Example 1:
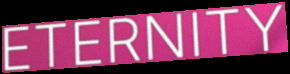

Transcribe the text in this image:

ETERNITY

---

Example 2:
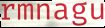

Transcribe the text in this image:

rmnagu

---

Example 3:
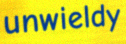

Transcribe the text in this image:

unwieldy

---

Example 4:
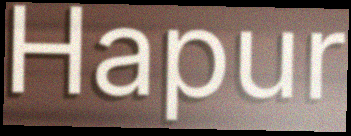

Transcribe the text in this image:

Hapur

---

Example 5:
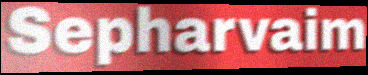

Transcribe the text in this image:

Sepharvaim